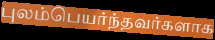
புலம்பெயர்ந்தவர்களாக